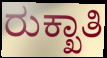
ರುಕ್ಖಾತಿ